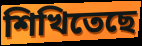
শিখিতেছে